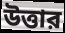
উত্তার